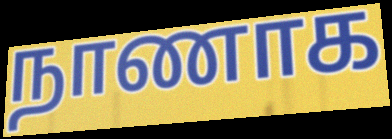
நாணாக